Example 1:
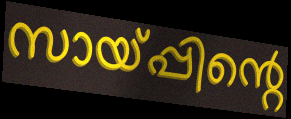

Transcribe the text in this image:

സായ്പ്പിന്റെ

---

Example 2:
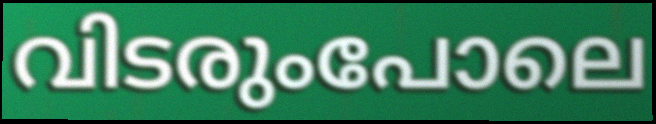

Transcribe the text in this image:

വിടരുംപോലെ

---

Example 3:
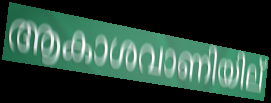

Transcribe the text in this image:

ആകാശവാണിയില്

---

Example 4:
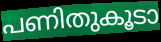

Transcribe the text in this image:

പണിതുകൂടാ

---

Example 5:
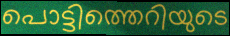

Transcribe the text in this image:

പൊട്ടിത്തെറിയുടെ